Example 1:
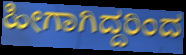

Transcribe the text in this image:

ಹೀಗಾಗಿದ್ದರಿಂದ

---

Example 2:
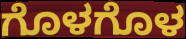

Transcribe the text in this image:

ಗೊಳಗೊಳ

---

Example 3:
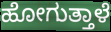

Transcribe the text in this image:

ಹೋಗುತ್ತಾಳೆ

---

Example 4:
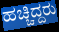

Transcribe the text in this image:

ಹಚ್ಚಿದ್ದರು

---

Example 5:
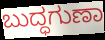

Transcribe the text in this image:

ಬುದ್ಧಗುಣಾ